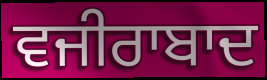
ਵਜੀਰਾਬਾਦ